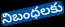
నిబంధలకు